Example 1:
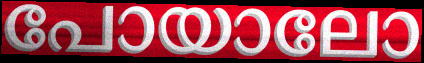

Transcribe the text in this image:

പോയാലോ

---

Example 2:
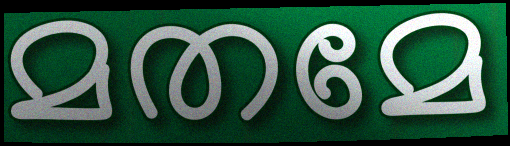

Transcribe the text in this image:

മതമേ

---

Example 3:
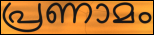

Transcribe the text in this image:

പ്രണാമം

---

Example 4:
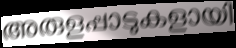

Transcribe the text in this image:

അരുളപ്പാടുകളായി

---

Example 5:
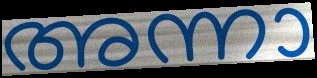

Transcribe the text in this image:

അന്നാ